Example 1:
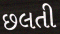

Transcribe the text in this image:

છલતી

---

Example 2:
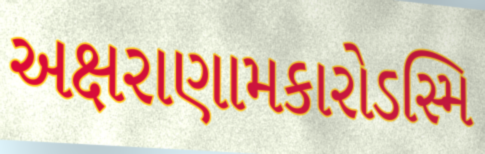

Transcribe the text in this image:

અક્ષરાણામકારોઽસ્મિ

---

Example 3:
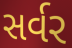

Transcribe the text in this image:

સર્વર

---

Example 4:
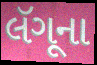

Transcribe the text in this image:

લૅગૂના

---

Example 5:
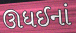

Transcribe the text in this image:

ઊધઈનાં